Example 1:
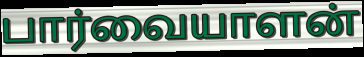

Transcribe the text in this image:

பார்வையாளன்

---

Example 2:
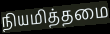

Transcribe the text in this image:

நியமித்தமை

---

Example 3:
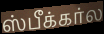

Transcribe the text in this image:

ஸ்பீக்கர்ல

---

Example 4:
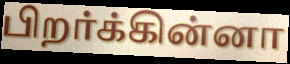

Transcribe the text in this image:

பிறர்க்கின்னா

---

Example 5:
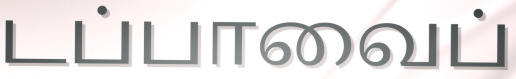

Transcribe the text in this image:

டப்பாவைப்